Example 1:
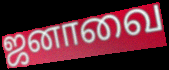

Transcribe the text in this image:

ஜனாவை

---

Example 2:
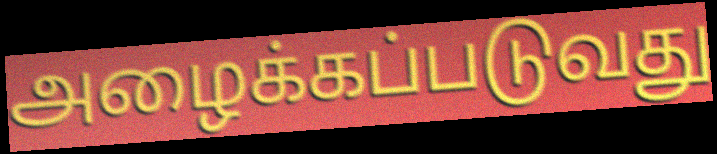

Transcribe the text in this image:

அழைக்கப்படுவது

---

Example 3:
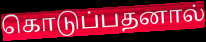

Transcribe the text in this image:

கொடுப்பதனால்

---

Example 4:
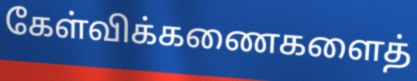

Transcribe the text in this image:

கேள்விக்கணைகளைத்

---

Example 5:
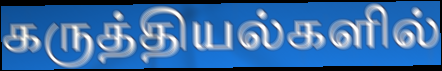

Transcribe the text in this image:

கருத்தியல்களில்